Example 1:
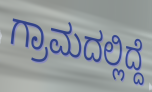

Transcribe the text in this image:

ಗ್ರಾಮದಲ್ಲಿದ್ದೆ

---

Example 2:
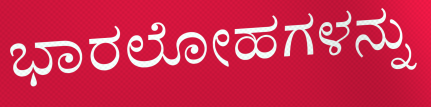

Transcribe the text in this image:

ಭಾರಲೋಹಗಳನ್ನು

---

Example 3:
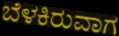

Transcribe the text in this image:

ಬೆಳಕಿರುವಾಗ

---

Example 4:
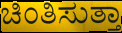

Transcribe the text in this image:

ಚಿಂತಿಸುತ್ತಾ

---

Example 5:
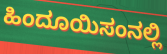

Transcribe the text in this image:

ಹಿಂದೂಯಿಸಂನಲ್ಲಿ